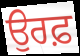
ਉਰਫ਼